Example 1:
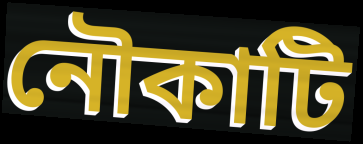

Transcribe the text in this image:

নৌকাটি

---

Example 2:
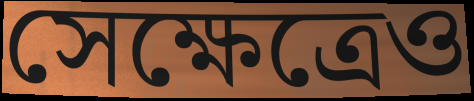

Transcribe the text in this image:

সেক্ষেত্রেও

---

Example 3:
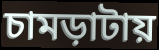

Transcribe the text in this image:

চামড়াটায়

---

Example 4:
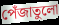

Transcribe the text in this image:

পেঁজাতুলো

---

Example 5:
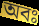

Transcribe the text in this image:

অবঃ